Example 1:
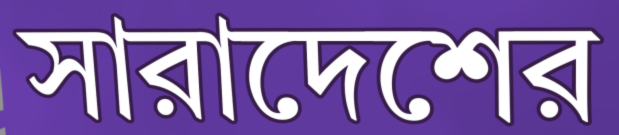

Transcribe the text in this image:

সারাদেশের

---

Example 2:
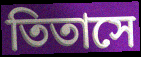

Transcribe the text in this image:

তিতাসে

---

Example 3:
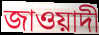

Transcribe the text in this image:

জাওয়াদী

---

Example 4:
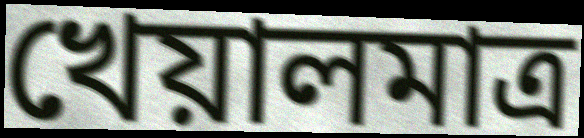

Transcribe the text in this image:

খেয়ালমাত্র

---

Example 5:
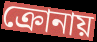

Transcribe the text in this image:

ক্রোনায়